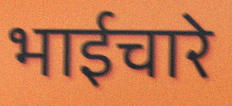
भाईचारे